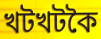
খটখটকৈ